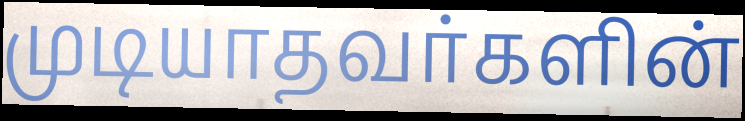
முடியாதவர்களின்